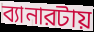
ব্যানারটায়